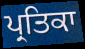
ਪ੍ਰਤਿਕਾ